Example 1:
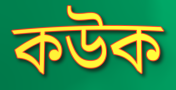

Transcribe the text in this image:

কউক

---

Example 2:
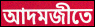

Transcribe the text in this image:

আদমজীতে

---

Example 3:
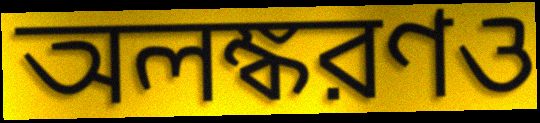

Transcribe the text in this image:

অলঙ্করণও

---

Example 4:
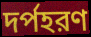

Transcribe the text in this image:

দর্পহরণ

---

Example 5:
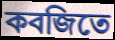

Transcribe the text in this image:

কবজিতে